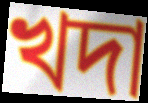
খদা